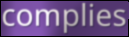
complies